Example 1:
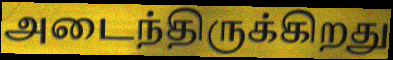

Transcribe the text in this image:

அடைந்திருக்கிறது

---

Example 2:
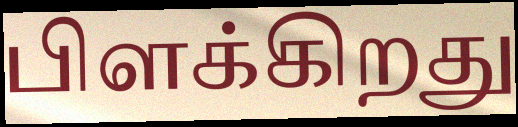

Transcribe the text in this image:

பிளக்கிறது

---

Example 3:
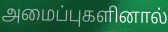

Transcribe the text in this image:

அமைப்புகளினால்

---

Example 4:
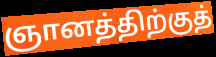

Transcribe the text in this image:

ஞானத்திற்குத்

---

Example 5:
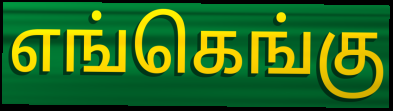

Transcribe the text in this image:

எங்கெங்கு